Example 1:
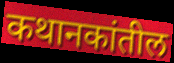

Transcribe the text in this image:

कथानकांतील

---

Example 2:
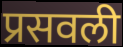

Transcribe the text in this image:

प्रसवली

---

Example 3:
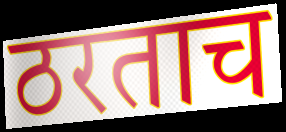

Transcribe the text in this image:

ठरताच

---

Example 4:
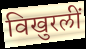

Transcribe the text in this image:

विखुरलीं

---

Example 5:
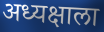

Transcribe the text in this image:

अध्यक्षाला